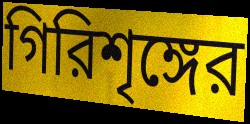
গিরিশৃঙ্গের